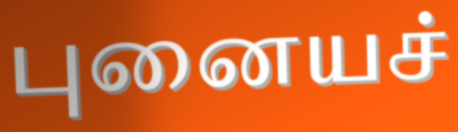
புனையச்